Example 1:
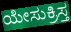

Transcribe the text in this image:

ಯೇಸುಕ್ರಿಸ್ತ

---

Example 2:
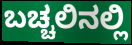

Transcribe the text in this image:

ಬಚ್ಚಲಿನಲ್ಲಿ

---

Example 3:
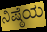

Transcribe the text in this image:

ನಿಷ್ಠೆಯ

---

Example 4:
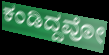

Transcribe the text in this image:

ಕಂಡಿದ್ದವೋ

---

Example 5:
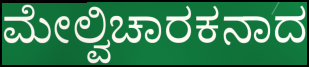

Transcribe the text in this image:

ಮೇಲ್ವಿಚಾರಕನಾದ